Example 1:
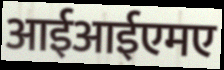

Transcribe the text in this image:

आईआईएमए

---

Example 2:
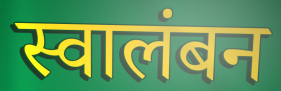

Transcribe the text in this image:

स्वालंबन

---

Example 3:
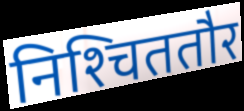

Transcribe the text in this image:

निश्चिततौर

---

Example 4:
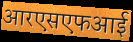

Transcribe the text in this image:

आरएसएफआई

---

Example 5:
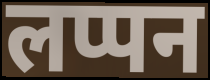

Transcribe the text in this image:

लप्पन